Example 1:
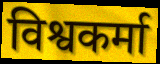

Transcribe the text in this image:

विश्वकर्मा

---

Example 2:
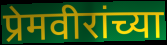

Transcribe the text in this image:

प्रेमवीरांच्या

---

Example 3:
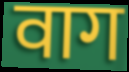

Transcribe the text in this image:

वाग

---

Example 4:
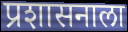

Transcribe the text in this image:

प्रशासनाला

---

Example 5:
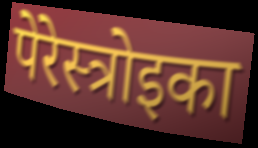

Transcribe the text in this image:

पेरेस्त्रोइका